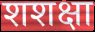
शशक्षा